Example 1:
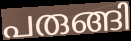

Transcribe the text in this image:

പരുങ്ങി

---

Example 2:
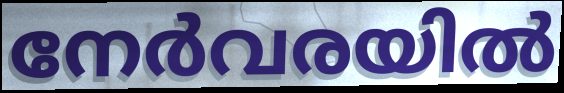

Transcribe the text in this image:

നേർവരയിൽ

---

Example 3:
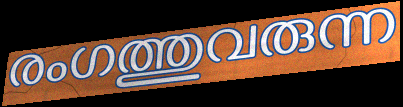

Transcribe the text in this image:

രംഗത്തുവരുന്ന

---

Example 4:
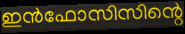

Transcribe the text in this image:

ഇൻഫോസിസിന്റെ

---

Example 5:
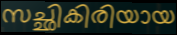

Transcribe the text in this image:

സച്ഛികിരിയായ